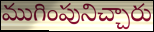
ముగింపునిచ్చారు